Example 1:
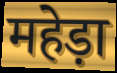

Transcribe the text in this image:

महेड़ा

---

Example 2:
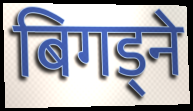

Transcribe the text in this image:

बिगड्ने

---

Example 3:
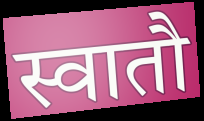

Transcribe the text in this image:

स्वातौ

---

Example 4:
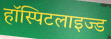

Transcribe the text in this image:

हॉस्पिटलाइज्ड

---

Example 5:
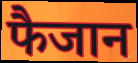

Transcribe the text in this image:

फैजान